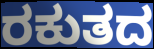
ರಕುತದ